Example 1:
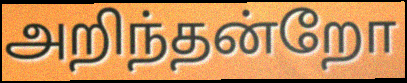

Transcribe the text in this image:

அறிந்தன்றோ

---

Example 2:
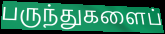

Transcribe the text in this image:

பருந்துகளைப்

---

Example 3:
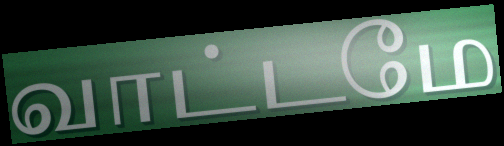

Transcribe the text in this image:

வாட்டமே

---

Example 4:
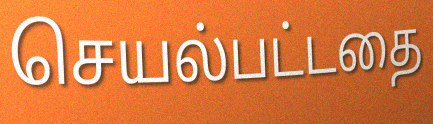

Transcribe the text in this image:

செயல்பட்டதை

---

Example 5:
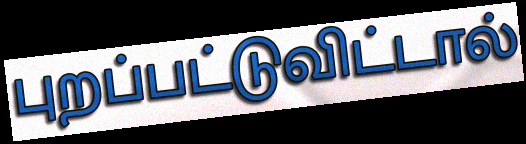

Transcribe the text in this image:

புறப்பட்டுவிட்டால்